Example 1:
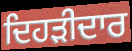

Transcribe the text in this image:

ਦਿਹੜੀਦਾਰ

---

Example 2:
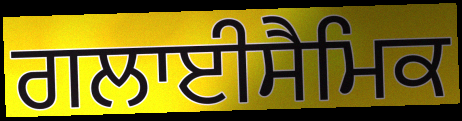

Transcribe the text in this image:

ਗਲਾਈਸੈਮਿਕ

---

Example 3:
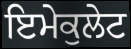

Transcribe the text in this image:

ਇਮੇਕੁਲੇਟ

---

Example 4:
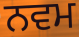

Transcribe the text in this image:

ਨਵਮ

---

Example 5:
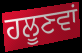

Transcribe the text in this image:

ਹਲੂਣਵਾਂ